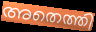
അതെത്തി